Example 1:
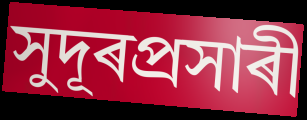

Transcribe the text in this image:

সুদূৰপ্ৰসাৰী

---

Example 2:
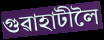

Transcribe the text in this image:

গুৱাহাটীলৈ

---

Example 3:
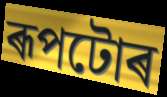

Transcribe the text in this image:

ৰূপটোৰ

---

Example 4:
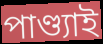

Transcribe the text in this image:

পাণ্ড্যাই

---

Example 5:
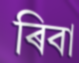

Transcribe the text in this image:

ৰিবা